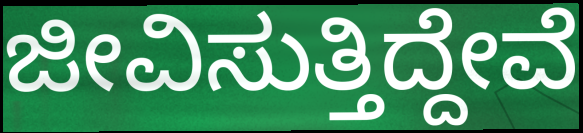
ಜೀವಿಸುತ್ತಿದ್ದೇವೆ